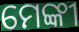
ମେଙ୍କୀ